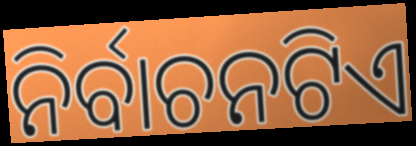
ନିର୍ବାଚନଟିଏ